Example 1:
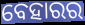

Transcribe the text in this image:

ବେହାରର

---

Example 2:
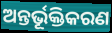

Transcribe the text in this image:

ଅନ୍ତର୍ଭୂକ୍ତିକରଣ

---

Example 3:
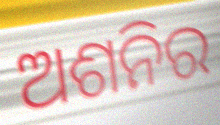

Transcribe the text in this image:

ଅଶନିର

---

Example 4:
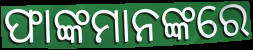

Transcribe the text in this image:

ଫାଙ୍କମାନଙ୍କରେ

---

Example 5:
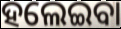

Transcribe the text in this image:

ହଲେଇବା